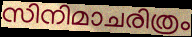
സിനിമാചരിത്രം